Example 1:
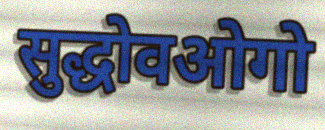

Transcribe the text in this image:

सुद्धोवओगो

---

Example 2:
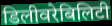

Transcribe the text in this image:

डिलीवरेबिलिटी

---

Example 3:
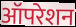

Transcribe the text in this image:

ऑपरेशन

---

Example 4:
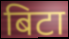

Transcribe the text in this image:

बिटा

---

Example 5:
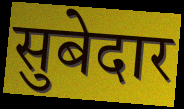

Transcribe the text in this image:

सुबेदार